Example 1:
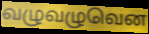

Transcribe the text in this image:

வழுவழுவென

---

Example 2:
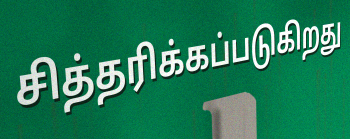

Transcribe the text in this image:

சித்தரிக்கப்படுகிறது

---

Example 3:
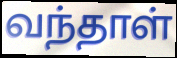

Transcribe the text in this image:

வந்தாள்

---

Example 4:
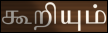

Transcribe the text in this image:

கூறியும்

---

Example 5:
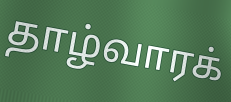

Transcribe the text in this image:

தாழ்வாரக்